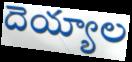
దెయ్యాల